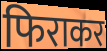
फिराकर